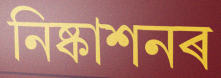
নিষ্কাশনৰ